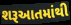
શરૂઆતમાંથી